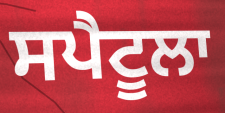
ਸਪੈਟੂਲਾ